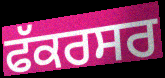
ਫੱਕਰਸਰ